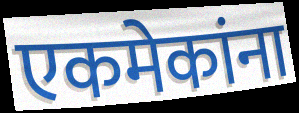
एकमेकांना